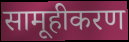
सामूहीकरण